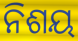
ନିଶୟ